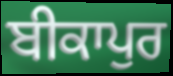
ਬੀਕਾਪੁਰ